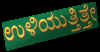
ಉಳಿಯುತ್ತಿತ್ತೇ